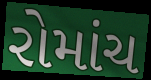
રોમાંચ